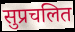
सुप्रचलित